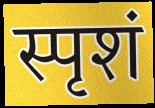
स्पृशं